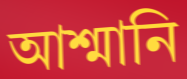
আশ্মানি